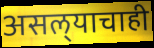
असल्याचाही